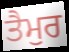
ਤੈਮੁਰ